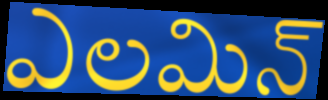
ఎలమిన్